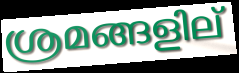
ശ്രമങ്ങളില്